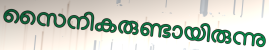
സൈനികരുണ്ടായിരുന്നു